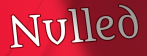
Nulled